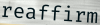
reaffirm